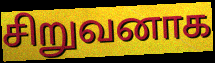
சிறுவனாக